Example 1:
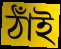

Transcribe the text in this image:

ঠাঁই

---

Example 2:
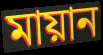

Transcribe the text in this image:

মায়ান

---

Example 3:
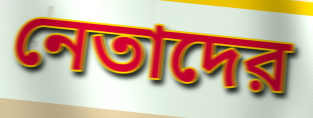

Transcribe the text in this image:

নেতাদের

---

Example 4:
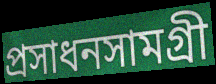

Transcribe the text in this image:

প্রসাধনসামগ্রী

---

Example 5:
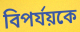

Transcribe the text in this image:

বিপর্যয়কে